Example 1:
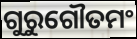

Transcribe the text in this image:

ଗୁରୁଗୌତମଂ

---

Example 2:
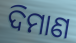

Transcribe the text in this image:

ଦିମାଣ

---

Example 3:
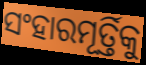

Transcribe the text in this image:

ସଂହାରମୂର୍ତ୍ତିକୁ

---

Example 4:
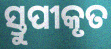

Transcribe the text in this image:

ସ୍ତୁପୀକୃତ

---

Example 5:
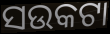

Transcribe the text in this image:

ସଉକଟା